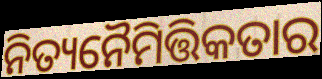
ନିତ୍ୟନୈମିତ୍ତିକତାର